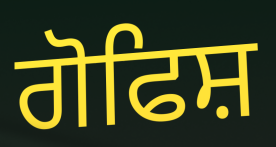
ਗੋਫਿਸ਼